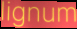
lignum